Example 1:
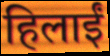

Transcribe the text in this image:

हिलाईं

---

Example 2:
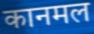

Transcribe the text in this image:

कानमल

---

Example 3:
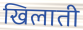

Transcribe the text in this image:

खिलाती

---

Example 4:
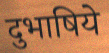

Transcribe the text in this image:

दुभाषिये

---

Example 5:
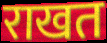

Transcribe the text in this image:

राखत